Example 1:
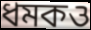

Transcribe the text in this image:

ধমকও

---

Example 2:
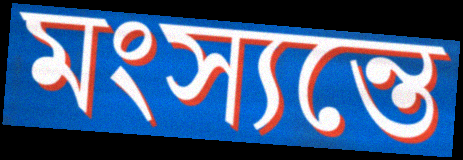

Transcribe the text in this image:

মংস্যন্তে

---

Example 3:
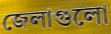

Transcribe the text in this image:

জেলাগুলো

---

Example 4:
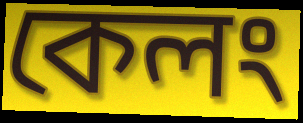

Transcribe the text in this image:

কেলং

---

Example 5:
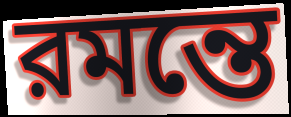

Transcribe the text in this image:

রমন্তে